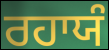
ਰਹਾਯੰ